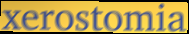
xerostomia